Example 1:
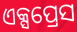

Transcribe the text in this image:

ଏକ୍ସପ୍ରେସ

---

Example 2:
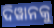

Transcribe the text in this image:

ଦିୱାନକୁ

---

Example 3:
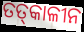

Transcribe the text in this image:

ତତ୍‍କାଳୀନ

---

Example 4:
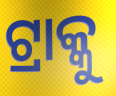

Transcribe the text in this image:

ଟ୍ରାକ୍କୁ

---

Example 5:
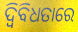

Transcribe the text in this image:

ଦ୍ୱିବିଧତାରେ